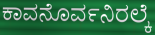
ಕಾವನೊರ್ವನಿರಲ್ಕೆ